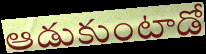
ఆడుకుంటాడో